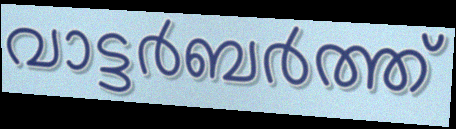
വാട്ടർബർത്ത്